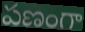
పణంగా